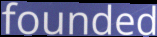
founded